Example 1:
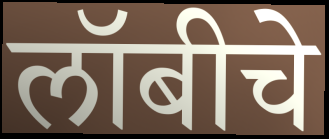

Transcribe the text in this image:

लॉबीचे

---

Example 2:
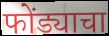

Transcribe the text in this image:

फोंड्याचा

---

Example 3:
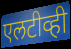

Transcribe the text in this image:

एलटीव्ही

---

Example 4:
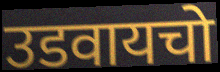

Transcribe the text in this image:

उडवायचो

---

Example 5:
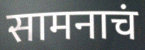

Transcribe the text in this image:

सामनाचं